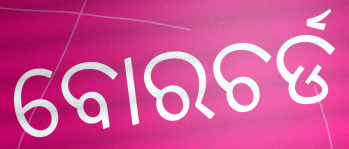
ବୋରଚର୍ଡ